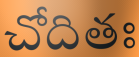
చోదితః